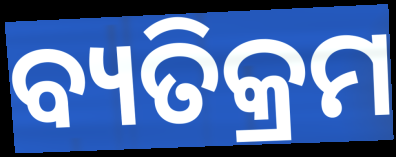
ବ୍ୟତିକ୍ରମ